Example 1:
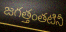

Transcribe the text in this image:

జగత్తంతటినీ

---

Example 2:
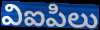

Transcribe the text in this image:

విఐపిలు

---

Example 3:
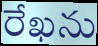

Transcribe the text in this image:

రేఖను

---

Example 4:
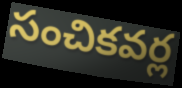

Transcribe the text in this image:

సంచికవర్ల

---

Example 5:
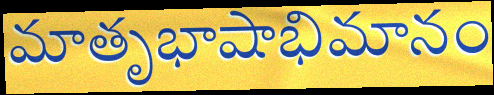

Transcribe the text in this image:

మాతృభాషాభిమానం